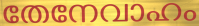
തേനേവാഹം